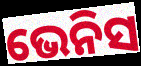
ଭେନିସ